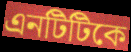
এনটিটিকে